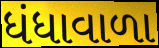
ધંધાવાળા